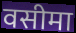
वसीमा